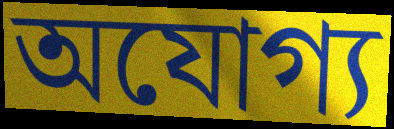
অযোগ্য